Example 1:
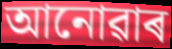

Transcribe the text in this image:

আনোৱাৰ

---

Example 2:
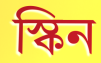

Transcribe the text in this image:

স্কিন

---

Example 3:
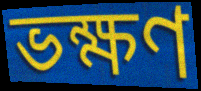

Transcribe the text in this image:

ভক্ষণ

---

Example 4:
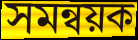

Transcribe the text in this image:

সমন্বয়ক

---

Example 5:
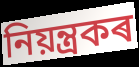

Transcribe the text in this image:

নিয়ন্ত্ৰকৰ